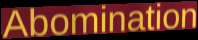
Abomination